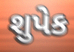
શુપેક